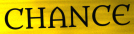
CHANCE